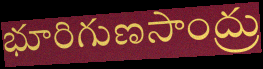
భూరిగుణసాంద్రు